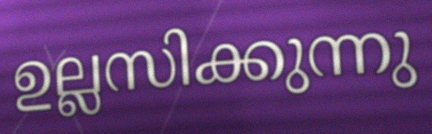
ഉല്ലസിക്കുന്നു